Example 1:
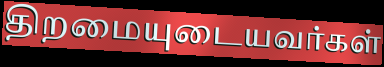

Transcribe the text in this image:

திறமையுடையவர்கள்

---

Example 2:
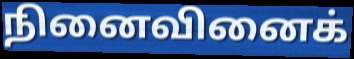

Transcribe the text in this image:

நினைவினைக்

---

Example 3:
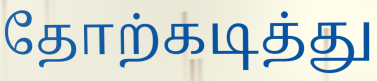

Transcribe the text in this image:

தோற்கடித்து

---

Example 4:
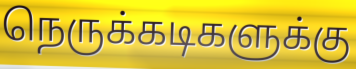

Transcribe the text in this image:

நெருக்கடிகளுக்கு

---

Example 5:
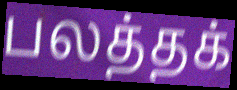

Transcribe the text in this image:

பலத்தக்